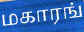
மகாரங்